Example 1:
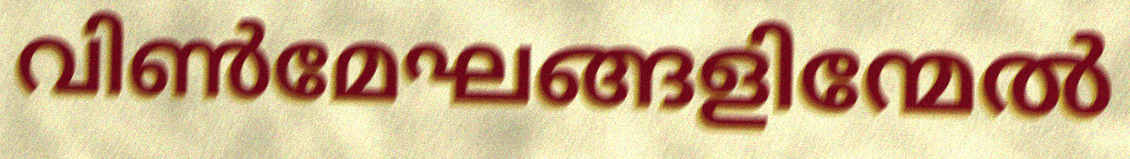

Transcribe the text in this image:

വിൺമേഘങ്ങളിന്മേൽ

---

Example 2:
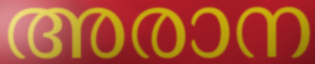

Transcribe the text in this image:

അരാന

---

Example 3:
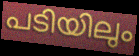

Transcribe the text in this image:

പടിയിലും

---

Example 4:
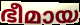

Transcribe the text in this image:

ഭീമായ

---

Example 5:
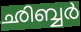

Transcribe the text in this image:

ഛിബ്ബർ